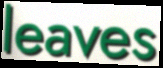
leaves